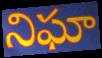
నిఘా